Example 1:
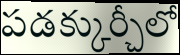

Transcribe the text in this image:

పడక్కుర్చీలో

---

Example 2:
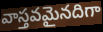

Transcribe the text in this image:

వాస్తవమైనదిగా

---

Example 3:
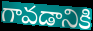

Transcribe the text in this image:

గావడానికి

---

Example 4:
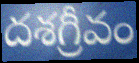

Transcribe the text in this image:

దశగ్రీవం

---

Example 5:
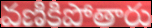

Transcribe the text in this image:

వణికిపోతారు